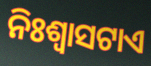
ନିଃଶ୍ଵାସଟାଏ